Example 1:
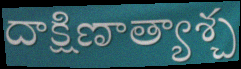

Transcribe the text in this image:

దాక్షిణాత్యాశ్చ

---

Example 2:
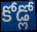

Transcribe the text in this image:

కోడ్లో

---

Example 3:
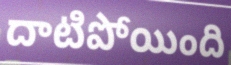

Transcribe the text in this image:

దాటిపోయింది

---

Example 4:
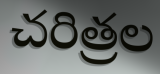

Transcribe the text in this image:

చరిత్రల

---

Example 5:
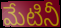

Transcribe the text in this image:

మేటినీ